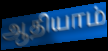
ஆதியாம்